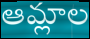
ఆమ్లాల